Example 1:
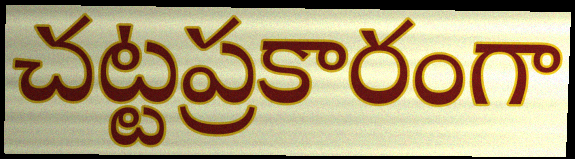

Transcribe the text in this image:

చట్టప్రకారంగా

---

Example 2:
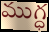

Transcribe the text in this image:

ముగ్ధ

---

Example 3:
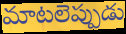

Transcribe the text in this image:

మాటలెప్పుడు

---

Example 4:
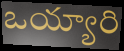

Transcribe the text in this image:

ఒయ్యారి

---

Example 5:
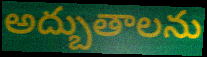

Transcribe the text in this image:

అద్బుతాలను